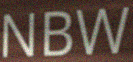
NBW